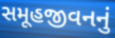
સમૂહજીવનનું